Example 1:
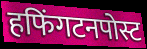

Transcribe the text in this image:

हफिंगटनपोस्ट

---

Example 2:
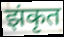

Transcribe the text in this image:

झंकृत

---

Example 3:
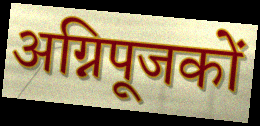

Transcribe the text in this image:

अग्निपूजकों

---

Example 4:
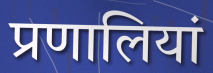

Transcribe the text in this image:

प्रणालियां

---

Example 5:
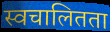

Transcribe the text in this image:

स्वचालितता